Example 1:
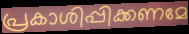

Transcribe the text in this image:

പ്രകാശിപ്പിക്കണമേ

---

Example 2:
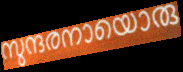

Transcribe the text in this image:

സുന്ദരനായൊരു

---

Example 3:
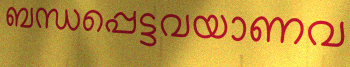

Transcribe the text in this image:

ബന്ധപ്പെട്ടവയാണവ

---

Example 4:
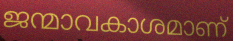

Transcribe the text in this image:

ജന്മാവകാശമാണ്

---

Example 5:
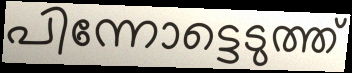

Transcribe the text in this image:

പിന്നോട്ടെടുത്ത്